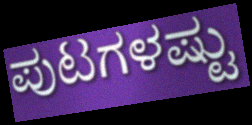
ಪುಟಗಳಷ್ಟು